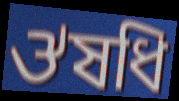
ঔষধি